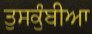
ਤੁਸਕੁੰਬੀਆ